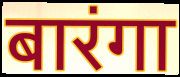
बारंगा